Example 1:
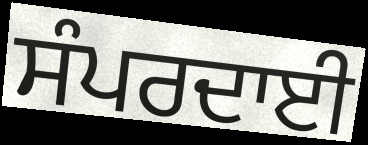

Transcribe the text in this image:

ਸੰਪਰਦਾਈ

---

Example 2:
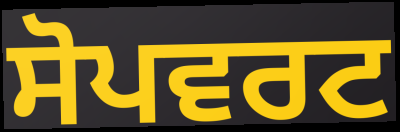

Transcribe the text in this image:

ਸੋਪਵਰਟ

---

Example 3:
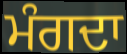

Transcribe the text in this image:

ਮੰਗਦਾ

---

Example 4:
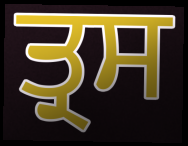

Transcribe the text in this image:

ਤ੍ਰਸ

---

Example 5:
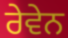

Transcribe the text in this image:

ਰੇਵੇਨ